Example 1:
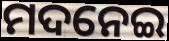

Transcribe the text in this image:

ମଦନେଇ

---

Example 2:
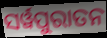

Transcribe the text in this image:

ସର୍ୱପୁରାତନ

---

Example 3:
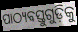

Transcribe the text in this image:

ପାଠ୍ୟବସ୍ତୁଗୁଡ଼ିକୁ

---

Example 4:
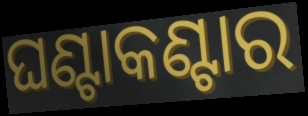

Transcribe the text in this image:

ଘଣ୍ଟାକଣ୍ଟାର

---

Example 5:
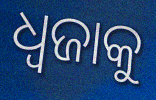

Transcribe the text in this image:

ଧ୍ୱଜାକୁ